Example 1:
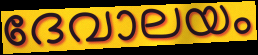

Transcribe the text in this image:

ദേവാലയം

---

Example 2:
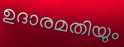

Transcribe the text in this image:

ഉദാരമതിയും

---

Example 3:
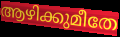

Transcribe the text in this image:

ആഴിക്കുമീതേ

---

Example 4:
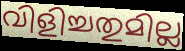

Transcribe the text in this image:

വിളിച്ചതുമില്ല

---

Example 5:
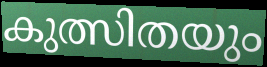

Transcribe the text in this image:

കുത്സിതയും